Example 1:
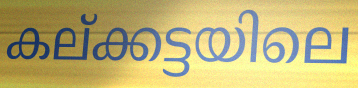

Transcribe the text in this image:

കല്ക്കട്ടയിലെ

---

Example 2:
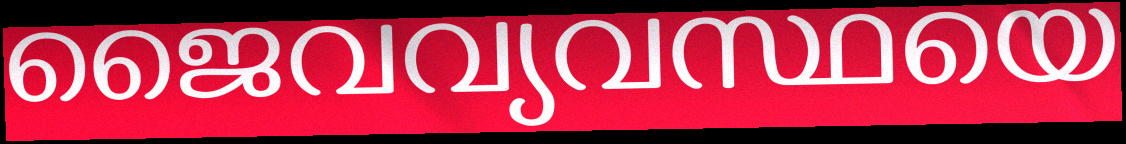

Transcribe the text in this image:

ജൈവവ്യവസ്ഥയെ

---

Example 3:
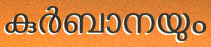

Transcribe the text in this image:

കുർബാനയും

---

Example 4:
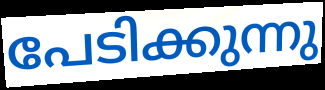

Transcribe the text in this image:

പേടിക്കുന്നു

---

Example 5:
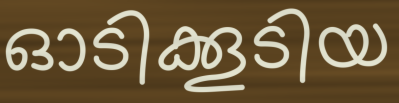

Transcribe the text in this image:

ഓടിക്കൂടിയ